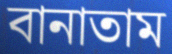
বানাতাম